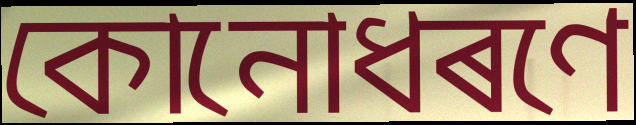
কোনোধৰণে